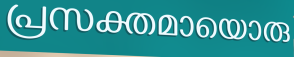
പ്രസക്തമായൊരു